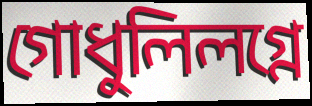
গোধুলিলগ্নে